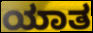
ಯಾತ